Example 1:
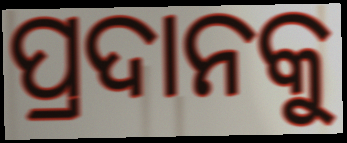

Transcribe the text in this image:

ପ୍ରଦାନକୁ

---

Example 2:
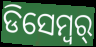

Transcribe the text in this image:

ଡିସେମ୍ବର୍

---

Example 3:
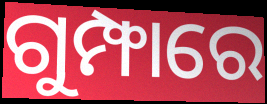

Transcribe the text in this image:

ଗୁମ୍ଫାରେ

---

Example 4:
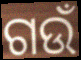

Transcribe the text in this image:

ଗଉଁ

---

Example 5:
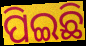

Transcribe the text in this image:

ପିଇଛି